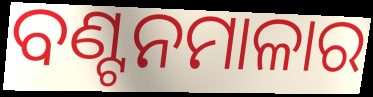
ବଣ୍ଟନମାଳାର